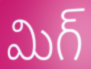
మిగ్